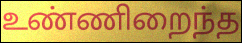
உண்ணிறைந்த